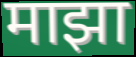
माझा